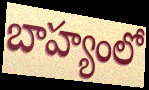
బాహ్యంలో